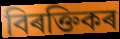
বিৰক্তিকৰ